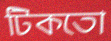
টিকতো